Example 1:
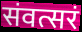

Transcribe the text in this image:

संवत्सरं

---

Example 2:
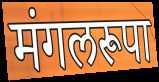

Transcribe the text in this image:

मंगलरूपा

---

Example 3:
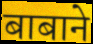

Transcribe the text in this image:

बाबाने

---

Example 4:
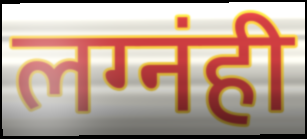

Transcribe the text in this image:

लग्नंही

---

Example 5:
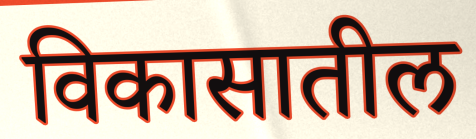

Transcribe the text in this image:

विकासातील